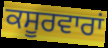
ਕਸੂਰਵਾਰਾਂ